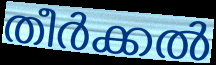
തീർക്കൽ